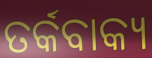
ତର୍କବାକ୍ୟ